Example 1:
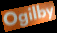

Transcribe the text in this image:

Ogilby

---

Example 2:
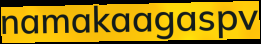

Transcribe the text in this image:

namakaagaspv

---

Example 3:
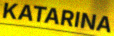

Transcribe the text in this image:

KATARINA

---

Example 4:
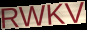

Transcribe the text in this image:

RWKV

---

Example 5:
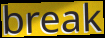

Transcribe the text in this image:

break